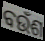
ବଉଁଶ